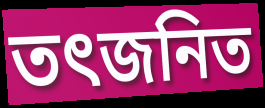
তৎজনিত